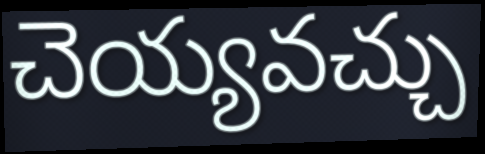
చెయ్యవచ్చు